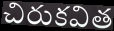
చిరుకవిత